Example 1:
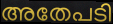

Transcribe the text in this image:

അതേപടി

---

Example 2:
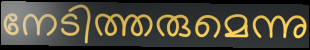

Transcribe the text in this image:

നേടിത്തരുമെന്നു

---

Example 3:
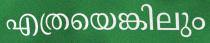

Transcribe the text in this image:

എത്രയെങ്കിലും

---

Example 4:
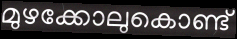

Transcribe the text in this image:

മുഴക്കോലുകൊണ്ട്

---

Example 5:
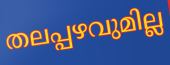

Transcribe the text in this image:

തലപ്പഴവുമില്ല